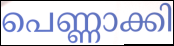
പെണ്ണാക്കി